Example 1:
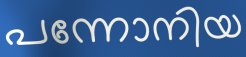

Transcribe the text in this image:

പന്നോനിയ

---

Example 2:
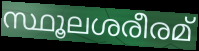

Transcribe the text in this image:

സ്ഥൂലശരീരമ്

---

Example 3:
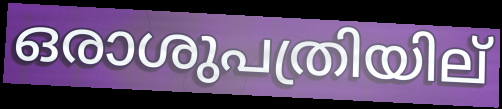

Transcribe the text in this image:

ഒരാശുപത്രിയില്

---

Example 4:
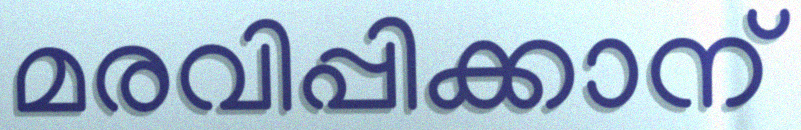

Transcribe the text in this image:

മരവിപ്പിക്കാന്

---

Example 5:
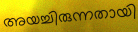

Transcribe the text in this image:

അയച്ചിരുന്നതായി